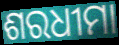
ଶରଧୀମା